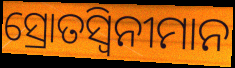
ସ୍ରୋତସ୍ୱିନୀମାନ